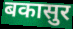
बकासुर